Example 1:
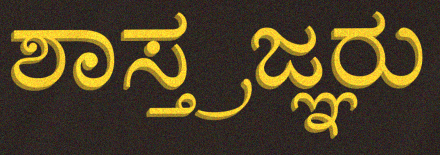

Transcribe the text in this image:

ಶಾಸ್ತ್ರಜ್ಞರು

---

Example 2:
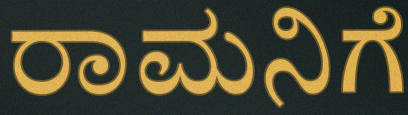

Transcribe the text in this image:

ರಾಮನಿಗೆ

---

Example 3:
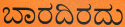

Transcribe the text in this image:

ಬಾರದಿರದು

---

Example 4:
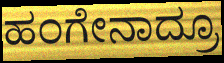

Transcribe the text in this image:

ಹಂಗೇನಾದ್ರೂ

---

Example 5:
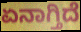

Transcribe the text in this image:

ಏನಾಗ್ತಿದೆ